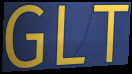
GLT